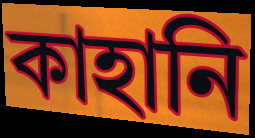
কাহানি